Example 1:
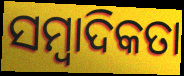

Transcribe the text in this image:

ସମ୍ବାଦିକତା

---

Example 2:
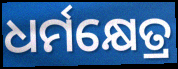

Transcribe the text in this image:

ଧର୍ମକ୍ଷେତ୍ର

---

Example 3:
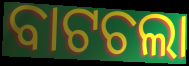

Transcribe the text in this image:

ବାଟଚଲା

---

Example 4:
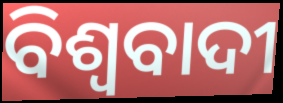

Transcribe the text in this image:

ବିଶ୍ଵବାଦୀ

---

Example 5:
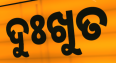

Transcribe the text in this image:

ଦୁଃଖୁତ